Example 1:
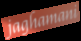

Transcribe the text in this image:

jaghamani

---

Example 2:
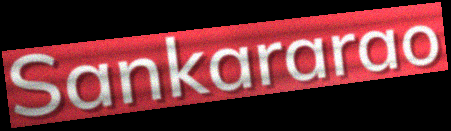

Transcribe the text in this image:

Sankararao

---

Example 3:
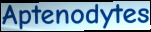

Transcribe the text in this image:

Aptenodytes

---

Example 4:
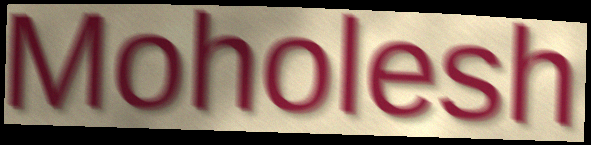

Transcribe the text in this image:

Moholesh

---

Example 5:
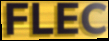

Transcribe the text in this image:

FLEC